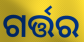
ଗର୍ତ୍ତର